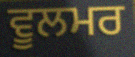
ਵੂਲਮਰ